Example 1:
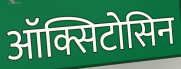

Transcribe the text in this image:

ऑक्सिटोसिन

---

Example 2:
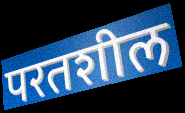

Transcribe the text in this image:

परतशील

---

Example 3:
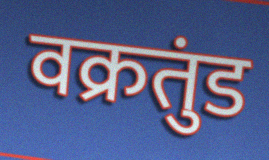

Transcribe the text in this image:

वक्रतुंड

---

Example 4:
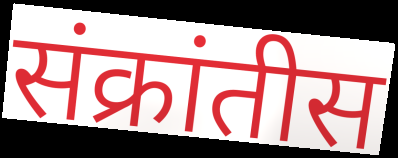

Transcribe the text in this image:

संक्रांतीस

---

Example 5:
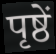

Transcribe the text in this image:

पृष्ठें